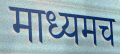
माध्यमच